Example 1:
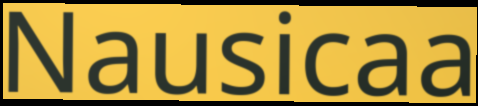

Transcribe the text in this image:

Nausicaa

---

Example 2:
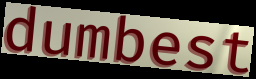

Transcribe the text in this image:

dumbest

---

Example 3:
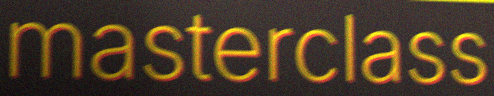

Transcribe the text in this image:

masterclass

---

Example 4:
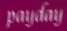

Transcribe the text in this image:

payday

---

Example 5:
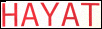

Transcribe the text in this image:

HAYAT